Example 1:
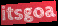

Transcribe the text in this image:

itsgoa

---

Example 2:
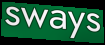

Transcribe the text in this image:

sways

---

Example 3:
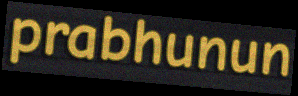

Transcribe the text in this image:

prabhunun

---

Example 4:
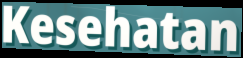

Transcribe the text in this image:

Kesehatan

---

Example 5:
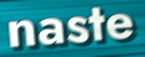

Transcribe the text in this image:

naste